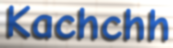
Kachchh